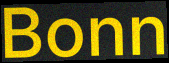
Bonn